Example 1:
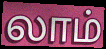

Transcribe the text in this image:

லாம்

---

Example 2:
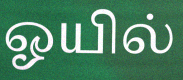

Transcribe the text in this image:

ஓயில்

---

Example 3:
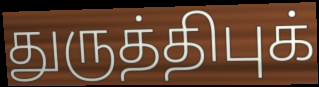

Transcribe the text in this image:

துருத்திபுக்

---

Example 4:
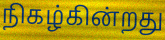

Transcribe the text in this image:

நிகழ்கின்றது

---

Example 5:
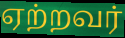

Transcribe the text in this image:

ஏற்றவர்